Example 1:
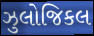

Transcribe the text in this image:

ઝુલોજિકલ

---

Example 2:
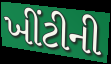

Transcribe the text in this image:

ખીંટીની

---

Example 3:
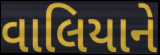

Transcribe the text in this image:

વાલિયાને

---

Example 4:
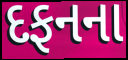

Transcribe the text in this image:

દફનના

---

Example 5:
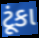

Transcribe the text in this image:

ટૂંકા